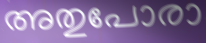
അതുപോരാ